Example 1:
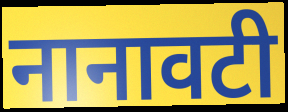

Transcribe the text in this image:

नानावटी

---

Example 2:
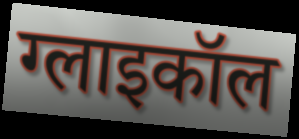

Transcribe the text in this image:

ग्लाइकॉल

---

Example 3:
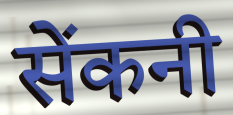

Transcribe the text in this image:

सेंकनी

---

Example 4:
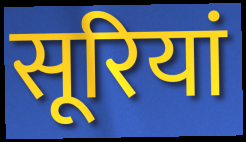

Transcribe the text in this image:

सूरियां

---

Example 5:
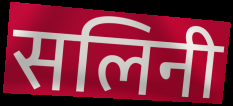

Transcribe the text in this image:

सलिनी